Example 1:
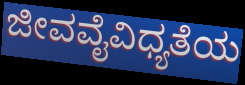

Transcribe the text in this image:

ಜೀವವೈವಿಧ್ಯತೆಯ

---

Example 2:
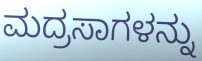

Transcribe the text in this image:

ಮದ್ರಸಾಗಳನ್ನು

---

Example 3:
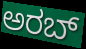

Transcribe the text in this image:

ಅರಬ್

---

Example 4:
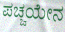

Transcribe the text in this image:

ಪಚ್ಚಯೇನ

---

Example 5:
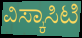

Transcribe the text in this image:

ವಿಸ್ಕಾಸಿಟಿ